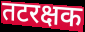
तटरक्षक